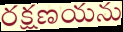
రక్షణయను